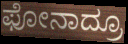
ಫೋನಾದ್ರೂ